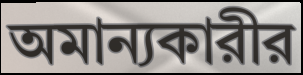
অমান্যকারীর